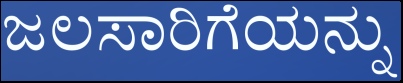
ಜಲಸಾರಿಗೆಯನ್ನು